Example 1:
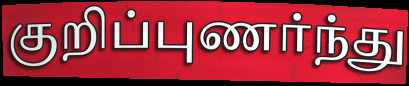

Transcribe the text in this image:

குறிப்புணர்ந்து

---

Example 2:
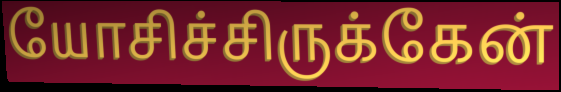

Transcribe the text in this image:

யோசிச்சிருக்கேன்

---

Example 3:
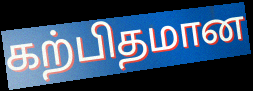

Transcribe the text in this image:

கற்பிதமான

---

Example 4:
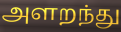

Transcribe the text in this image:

அளறந்து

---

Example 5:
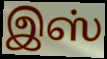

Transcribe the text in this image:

இஸ்